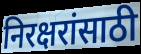
निरक्षरांसाठी